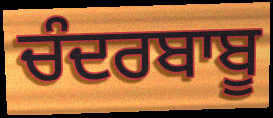
ਚੰਦਰਬਾਬੂ